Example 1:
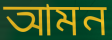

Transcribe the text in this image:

আমন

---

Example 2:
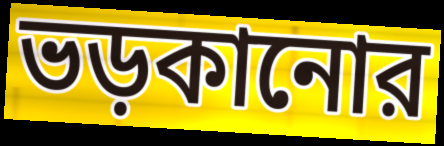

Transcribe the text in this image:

ভড়কানোর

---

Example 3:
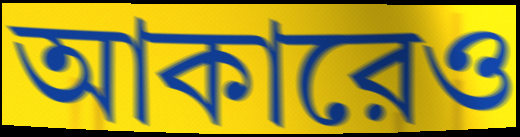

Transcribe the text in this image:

আকারেও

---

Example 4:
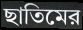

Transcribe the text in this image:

ছাতিমের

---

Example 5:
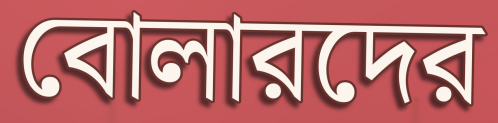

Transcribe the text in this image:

বোলারদের